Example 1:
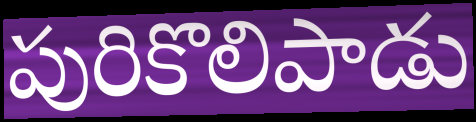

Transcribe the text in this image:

పురికొలిపాడు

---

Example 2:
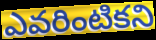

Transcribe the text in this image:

ఎవరింటికని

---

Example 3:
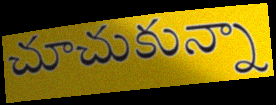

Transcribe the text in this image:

చూచుకున్నా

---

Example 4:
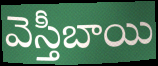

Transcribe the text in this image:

వెస్తీబాయి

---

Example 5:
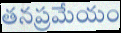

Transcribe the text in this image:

తనప్రమేయం